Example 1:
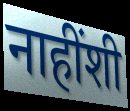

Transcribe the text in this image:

नाहींशी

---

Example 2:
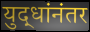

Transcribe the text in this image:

युद्धांनंतर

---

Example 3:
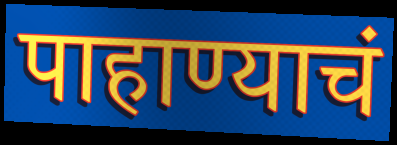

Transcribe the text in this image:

पाहाण्याचं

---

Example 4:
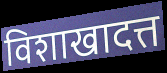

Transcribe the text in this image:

विशाखादत्त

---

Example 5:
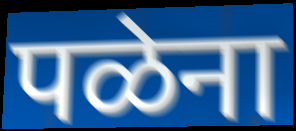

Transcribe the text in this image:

पळेना